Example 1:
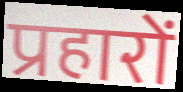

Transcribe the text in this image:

प्रहारों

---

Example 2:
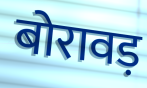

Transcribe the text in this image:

बोरावड़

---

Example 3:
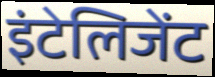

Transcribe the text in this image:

इंटेलिजेंट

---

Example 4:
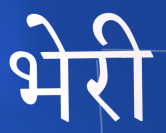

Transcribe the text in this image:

भेरी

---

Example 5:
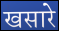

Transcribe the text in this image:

खसारे